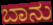
ಬಾನು